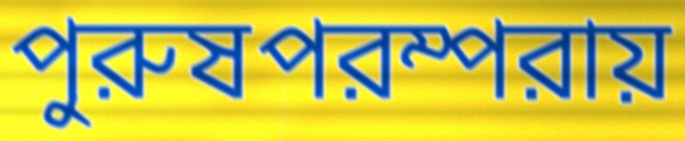
পুরুষপরম্পরায়